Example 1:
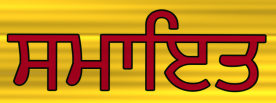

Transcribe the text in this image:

ਸਮਾਇਤ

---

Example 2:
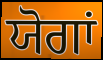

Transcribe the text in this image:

ਯੋਗਾਂ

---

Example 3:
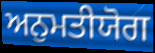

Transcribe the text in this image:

ਅਨੁਮਤੀਯੋਗ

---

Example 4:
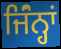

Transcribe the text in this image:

ਜਿੰਂਨ੍ਹਾਂ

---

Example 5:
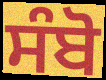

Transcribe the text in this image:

ਸੰਬੋ